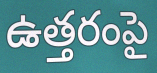
ఉత్తరంపై